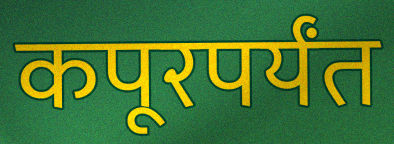
कपूरपर्यंत